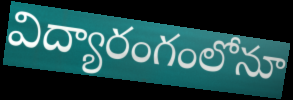
విద్యారంగంలోనూ